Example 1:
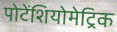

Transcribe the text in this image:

पोटेंशियोमेट्रिक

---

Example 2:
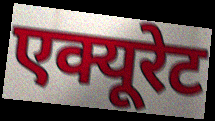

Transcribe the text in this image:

एक्यूरेट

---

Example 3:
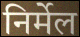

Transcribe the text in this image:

निर्मेल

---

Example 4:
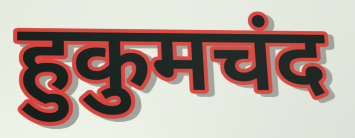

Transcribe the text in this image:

हुकुमचंद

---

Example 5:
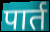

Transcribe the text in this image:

पार्त